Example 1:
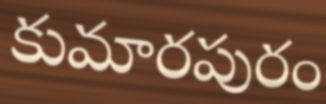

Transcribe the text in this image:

కుమారపురం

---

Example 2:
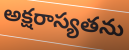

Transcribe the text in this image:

అక్షరాస్యతను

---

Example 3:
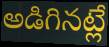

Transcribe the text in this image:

అడిగినట్లే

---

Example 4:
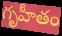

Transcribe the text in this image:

గృహీతం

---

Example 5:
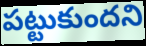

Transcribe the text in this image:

పట్టుకుందని